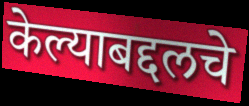
केल्याबद्दलचे